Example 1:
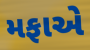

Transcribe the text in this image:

મફાએ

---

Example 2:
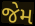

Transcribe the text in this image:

જેમ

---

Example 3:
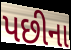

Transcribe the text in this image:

પછીના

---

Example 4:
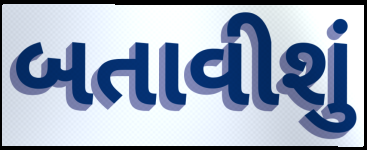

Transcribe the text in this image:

બતાવીશું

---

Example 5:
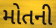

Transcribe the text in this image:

મોતની